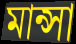
মান্সা